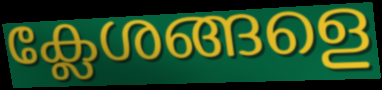
ക്ലേശങ്ങളെ